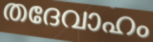
തദേവാഹം